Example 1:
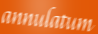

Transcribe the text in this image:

annulatum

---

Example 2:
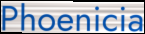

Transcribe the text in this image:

Phoenicia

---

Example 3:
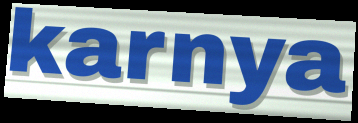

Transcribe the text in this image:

karnya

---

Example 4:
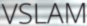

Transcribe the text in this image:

VSLAM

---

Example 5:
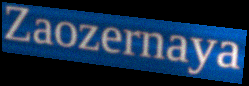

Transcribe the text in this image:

Zaozernaya